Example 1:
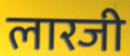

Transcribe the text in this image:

लारजी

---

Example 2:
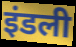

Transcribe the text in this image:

इंडली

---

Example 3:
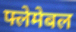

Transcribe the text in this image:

फ्लेमेबल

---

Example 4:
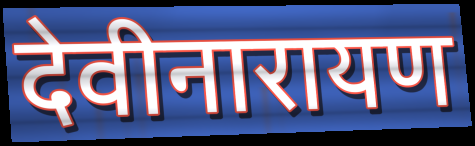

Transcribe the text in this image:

देवीनारायण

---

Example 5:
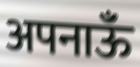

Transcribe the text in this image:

अपनाऊँ